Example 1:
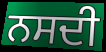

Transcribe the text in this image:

ਨਸਦੀ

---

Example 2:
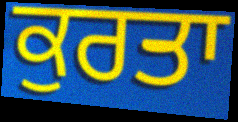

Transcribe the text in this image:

ਕੁਰਤਾ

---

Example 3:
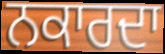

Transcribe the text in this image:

ਨਕਾਰਦਾ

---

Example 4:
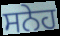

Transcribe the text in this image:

ਸਨੇਹ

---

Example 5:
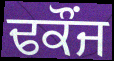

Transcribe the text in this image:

ਢਕੌਂਜ